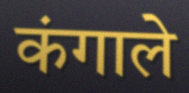
कंगाले